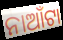
ନାଆଁଟା